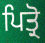
ਪਿਤ੍ਰੋ